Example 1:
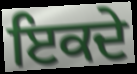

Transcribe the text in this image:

ਇਕਦੇ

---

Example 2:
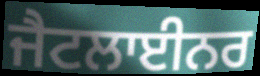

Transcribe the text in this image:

ਜੈਟਲਾਈਨਰ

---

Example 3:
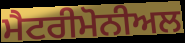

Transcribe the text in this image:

ਮੈਟਰੀਮੋਨੀਅਲ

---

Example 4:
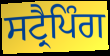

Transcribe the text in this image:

ਸਟ੍ਰੈਪਿੰਗ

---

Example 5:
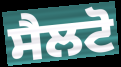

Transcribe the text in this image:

ਸੈਲਟੋ